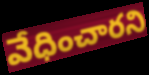
వేధించారని